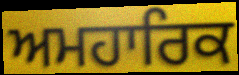
ਅਮਹਾਰਿਕ